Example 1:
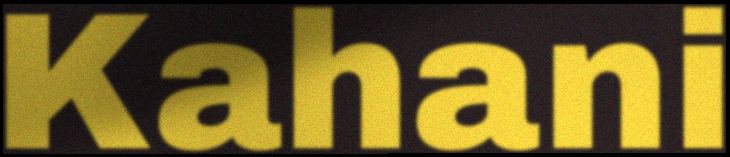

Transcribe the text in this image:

Kahani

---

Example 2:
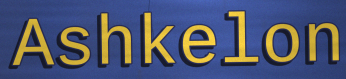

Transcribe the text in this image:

Ashkelon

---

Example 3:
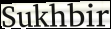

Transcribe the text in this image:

Sukhbir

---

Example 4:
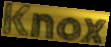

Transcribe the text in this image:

Knox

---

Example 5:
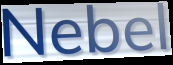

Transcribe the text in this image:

Nebel